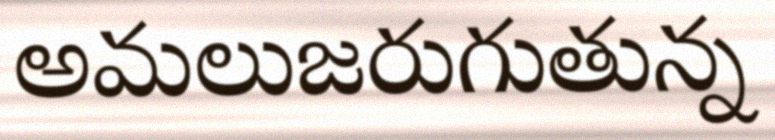
అమలుజరుగుతున్న